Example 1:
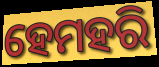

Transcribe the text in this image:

ହେମହରି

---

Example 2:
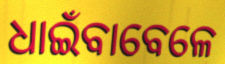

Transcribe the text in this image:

ଧାଇଁବାବେଳେ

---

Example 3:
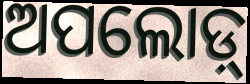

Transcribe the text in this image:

ଅପଲୋଡ଼୍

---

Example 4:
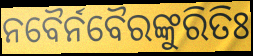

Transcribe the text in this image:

ନବୈର୍ନବୈରଙ୍କୁରିତିଃ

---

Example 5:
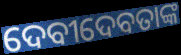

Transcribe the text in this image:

ଦେବୀଦେବତାଙ୍କ